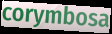
corymbosa